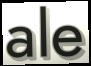
ale